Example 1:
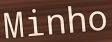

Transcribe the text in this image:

Minho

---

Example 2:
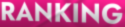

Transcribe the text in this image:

RANKING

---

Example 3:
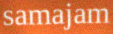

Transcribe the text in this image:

samajam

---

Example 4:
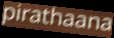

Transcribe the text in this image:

pirathaana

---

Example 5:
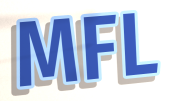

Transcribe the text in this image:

MFL